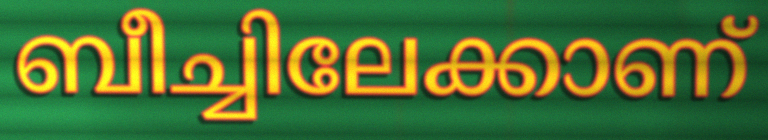
ബീച്ചിലേക്കാണ്